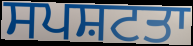
ਸਪਸ਼ਟਤਾ